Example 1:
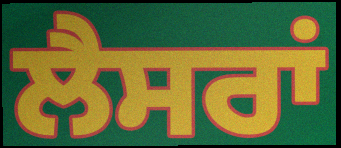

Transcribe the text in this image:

ਲੈਸਰਾਂ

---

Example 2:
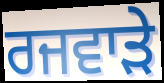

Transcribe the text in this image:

ਰਜਵਾੜੇ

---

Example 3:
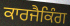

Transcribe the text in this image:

ਕਾਰਜੈਕਿੰਗ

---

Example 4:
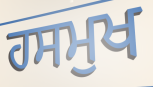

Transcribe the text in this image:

ਹਸਮੁਖ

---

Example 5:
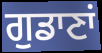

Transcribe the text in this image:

ਗੁਡਾਣਾਂ